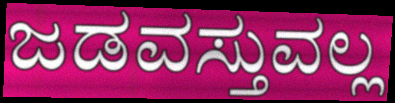
ಜಡವಸ್ತುವಲ್ಲ